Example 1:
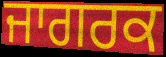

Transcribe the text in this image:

ਜਾਗਰਕ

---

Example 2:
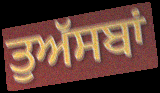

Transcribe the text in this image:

ਤੁਅੱਸਬਾਂ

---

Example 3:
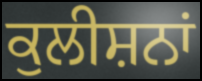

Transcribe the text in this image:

ਕੁਲੀਸ਼ਨਾਂ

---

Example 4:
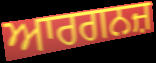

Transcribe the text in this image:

ਆਰਗਨਜ਼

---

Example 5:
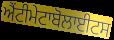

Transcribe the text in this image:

ਐਂਟੀਮੇਟਾਬੋਲਾਈਟਸ